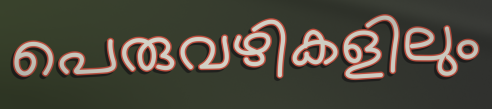
പെരുവഴികളിലും